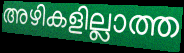
അഴികളില്ലാത്ത